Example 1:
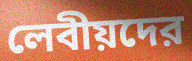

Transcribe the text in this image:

লেবীয়দের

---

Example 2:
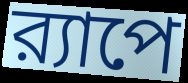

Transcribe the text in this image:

র‍্যাপে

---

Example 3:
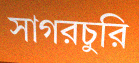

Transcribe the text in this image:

সাগরচুরি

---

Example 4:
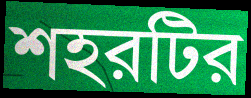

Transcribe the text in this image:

শহরটির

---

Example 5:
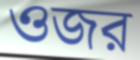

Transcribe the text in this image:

ওজর